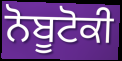
ਨੋਬੂਟੋਕੀ